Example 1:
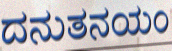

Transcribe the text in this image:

ದನುತನಯಂ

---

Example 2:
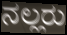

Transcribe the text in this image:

ನಲ್ಲರು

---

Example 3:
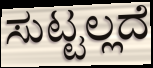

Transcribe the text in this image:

ಸುಟ್ಟಲ್ಲದೆ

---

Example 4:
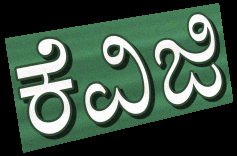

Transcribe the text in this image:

ಕೆವಿಜಿ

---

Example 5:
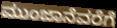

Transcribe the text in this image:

ಮುಂಜಾನೆವರೆಗೆ